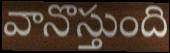
వానొస్తుంది